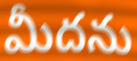
మీదను